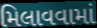
મિલાવવામાં